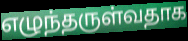
எழுந்தருள்வதாக